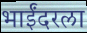
भाईंदरला